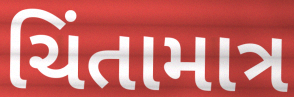
ચિંતામાત્ર